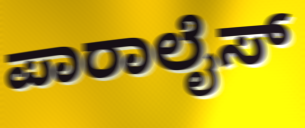
ಪಾರಾಲೈಸ್